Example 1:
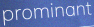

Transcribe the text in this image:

prominant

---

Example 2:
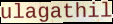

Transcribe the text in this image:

ulagathil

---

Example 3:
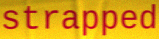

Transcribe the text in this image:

strapped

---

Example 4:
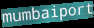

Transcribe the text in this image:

mumbaiport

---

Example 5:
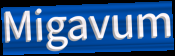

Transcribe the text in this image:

Migavum